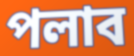
পলাব